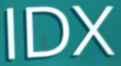
IDX